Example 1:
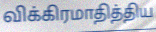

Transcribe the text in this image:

விக்கிரமாதித்திய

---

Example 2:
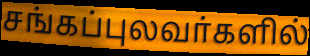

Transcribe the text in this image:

சங்கப்புலவர்களில்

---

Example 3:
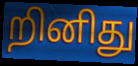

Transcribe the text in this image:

றினிது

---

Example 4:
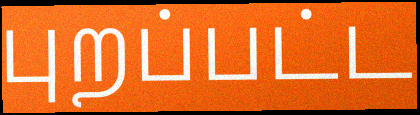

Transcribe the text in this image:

புறப்பட்ட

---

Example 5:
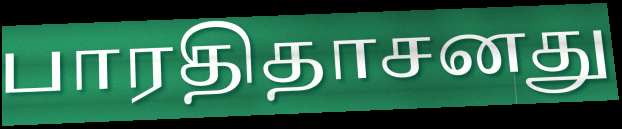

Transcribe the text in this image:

பாரதிதாசனது